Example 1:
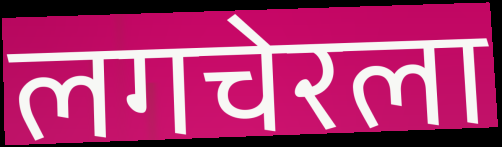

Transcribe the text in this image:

लगचेरला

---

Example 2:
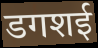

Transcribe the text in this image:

डगशई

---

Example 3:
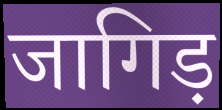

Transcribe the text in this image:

जागिड़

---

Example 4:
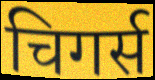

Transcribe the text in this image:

चिगर्स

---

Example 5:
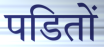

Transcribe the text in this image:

पडितों